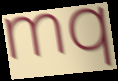
mq